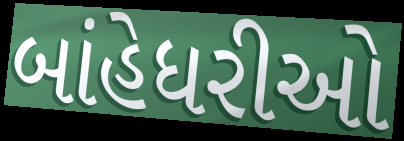
બાંહેધરીઓ